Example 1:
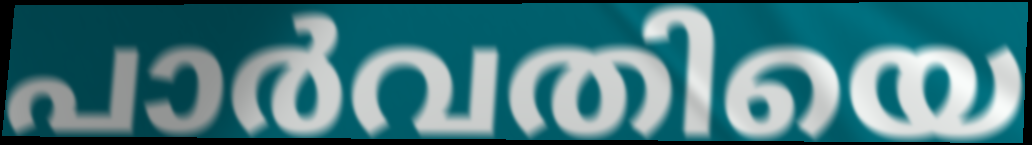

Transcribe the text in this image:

പാർവതിയെ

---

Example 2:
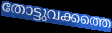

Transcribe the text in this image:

തോട്ടുവക്കത്തെ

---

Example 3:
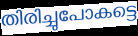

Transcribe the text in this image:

തിരിച്ചുപോകട്ടെ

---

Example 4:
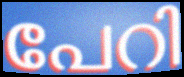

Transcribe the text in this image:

പേറി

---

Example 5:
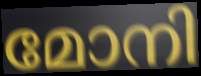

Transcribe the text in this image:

മോനി